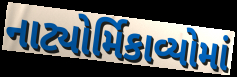
નાટ્યોર્મિકાવ્યોમાં